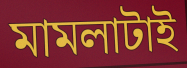
মামলাটাই